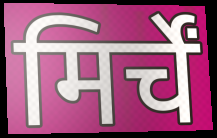
मिर्चें